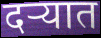
दऱ्यात